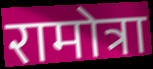
रामोत्रा